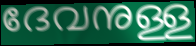
ദേവനുള്ള